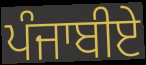
ਪੰਜਾਬੀਏ